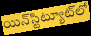
యిన్‌స్టిట్యూట్‌లో